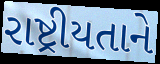
રાષ્ટ્રીયતાને